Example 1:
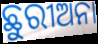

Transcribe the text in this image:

ଛୁରୀଅନା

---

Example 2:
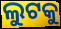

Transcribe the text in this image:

ଲୁଟକୁ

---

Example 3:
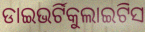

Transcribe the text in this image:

ଡାଇଭର୍ଟିକୁଲାଇଟିସ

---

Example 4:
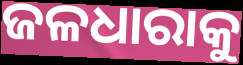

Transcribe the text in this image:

ଜଳଧାରାକୁ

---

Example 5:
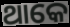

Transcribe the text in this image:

ଥାକେ